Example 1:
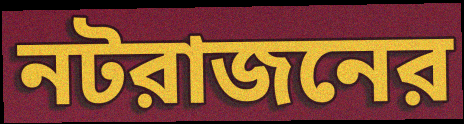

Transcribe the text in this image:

নটরাজনের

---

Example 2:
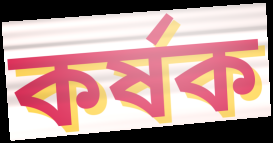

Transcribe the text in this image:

কর্ষক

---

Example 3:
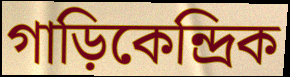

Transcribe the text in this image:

গাড়িকেন্দ্রিক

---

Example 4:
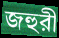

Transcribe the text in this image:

জহুরী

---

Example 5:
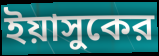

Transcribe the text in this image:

ইয়াসুকের